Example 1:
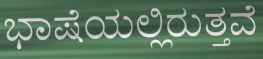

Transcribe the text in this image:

ಭಾಷೆಯಲ್ಲಿರುತ್ತವೆ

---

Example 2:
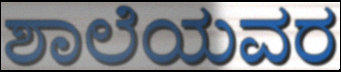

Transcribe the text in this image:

ಶಾಲೆಯವರ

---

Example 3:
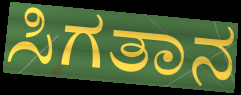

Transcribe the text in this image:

ಸಿಗತಾನ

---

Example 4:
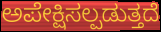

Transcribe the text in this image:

ಅಪೇಕ್ಷಿಸಲ್ಪಡುತ್ತದೆ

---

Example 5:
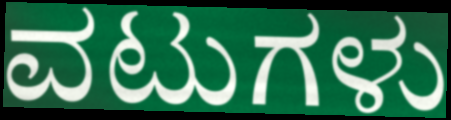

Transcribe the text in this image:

ವಟುಗಳು